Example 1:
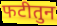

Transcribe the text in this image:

फटीतुन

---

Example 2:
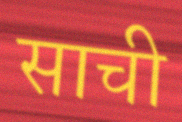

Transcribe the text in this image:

साची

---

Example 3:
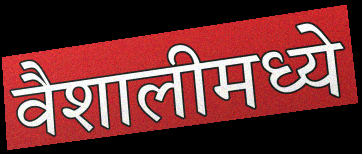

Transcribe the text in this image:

वैशालीमध्ये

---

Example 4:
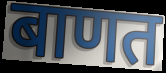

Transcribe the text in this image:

बाणत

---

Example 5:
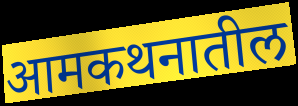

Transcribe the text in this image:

आमकथनातील